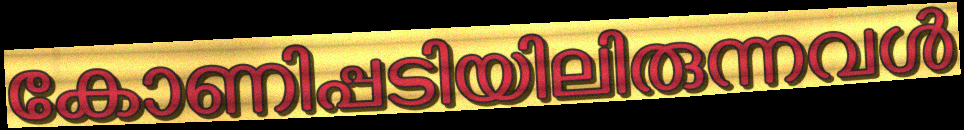
കോണിപ്പടിയിലിരുന്നവൾ